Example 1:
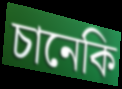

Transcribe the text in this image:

চানেকি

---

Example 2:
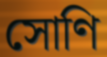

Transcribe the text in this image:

সোণি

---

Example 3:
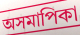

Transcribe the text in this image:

অসমাপিকা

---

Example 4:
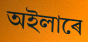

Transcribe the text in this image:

অইলাৰে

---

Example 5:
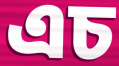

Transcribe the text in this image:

এচ